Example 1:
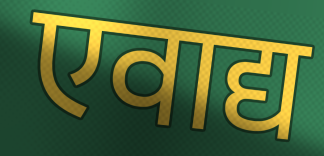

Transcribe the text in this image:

एवाद्य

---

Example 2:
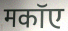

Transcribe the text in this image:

मकॉए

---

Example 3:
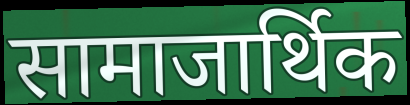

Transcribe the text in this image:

सामाजार्थिक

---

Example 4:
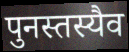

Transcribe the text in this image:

पुनस्तस्यैव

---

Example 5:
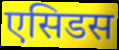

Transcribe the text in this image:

एसिडस